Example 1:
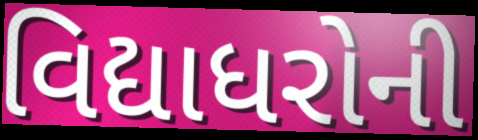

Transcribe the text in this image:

વિદ્યાધરોની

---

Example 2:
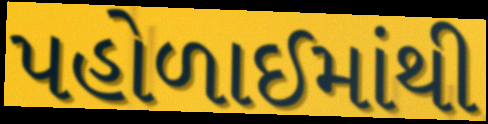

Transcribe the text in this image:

પહોળાઈમાંથી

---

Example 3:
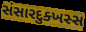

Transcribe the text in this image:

સંસારદુક્ખસ્સ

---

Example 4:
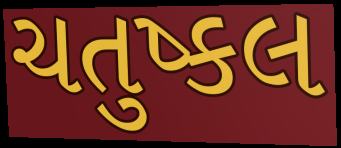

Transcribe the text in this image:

ચતુષ્કલ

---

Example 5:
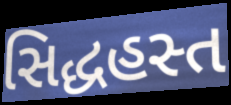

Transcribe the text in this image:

સિદ્ધહસ્ત